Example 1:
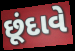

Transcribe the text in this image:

છૂંદાવે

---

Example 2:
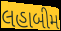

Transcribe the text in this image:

લહાબીમ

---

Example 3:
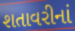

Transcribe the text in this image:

શતાવરીનાં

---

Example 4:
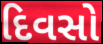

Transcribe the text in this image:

દિવસો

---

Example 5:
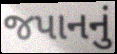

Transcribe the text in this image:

જપાનનું